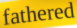
fathered